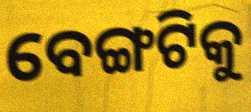
ବେଙ୍ଗଟିକୁ